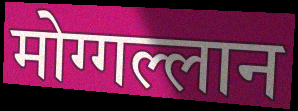
मोग्गल्लान